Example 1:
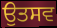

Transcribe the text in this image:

ਉਤਸਵ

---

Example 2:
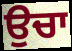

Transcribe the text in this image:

ਉਚਾ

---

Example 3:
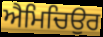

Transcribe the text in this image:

ਐਮਿਚਿਉਰ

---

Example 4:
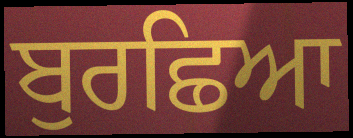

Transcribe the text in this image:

ਬੁਰਛਿਆ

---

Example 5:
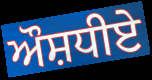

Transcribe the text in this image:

ਔਸ਼ਧੀਏ